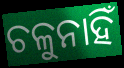
ଚଳୁନାହିଁ